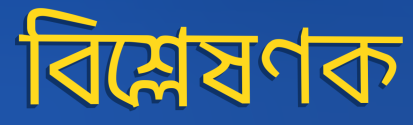
বিশ্লেষণক